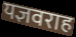
यज्ञवराह